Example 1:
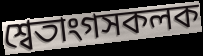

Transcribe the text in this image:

শ্বেতাংগসকলক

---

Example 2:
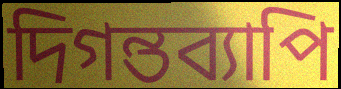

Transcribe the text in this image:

দিগন্তব্যাপি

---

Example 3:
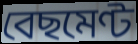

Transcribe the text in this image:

বেছমেণ্ট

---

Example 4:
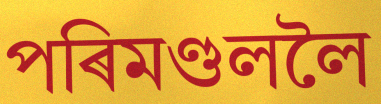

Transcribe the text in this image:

পৰিমণ্ডললৈ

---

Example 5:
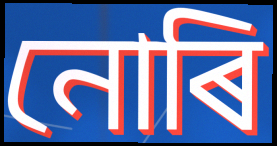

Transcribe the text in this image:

নোৰি